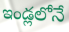
ఇండ్లలోనే